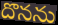
దొనను